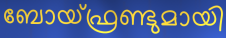
ബോയ്ഫ്രണ്ടുമായി